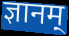
ज्ञानम्